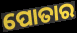
ପୋତାର